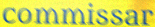
commissar